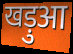
खड़ुआ